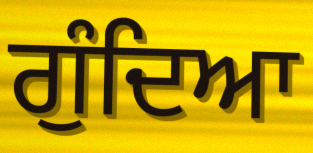
ਗੁੰਦਿਆ